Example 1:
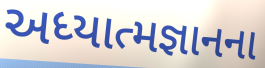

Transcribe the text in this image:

અધ્યાત્મજ્ઞાનના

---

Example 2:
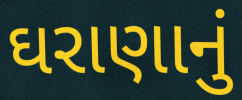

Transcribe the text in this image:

ઘરાણાનું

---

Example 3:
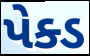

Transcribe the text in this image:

પેક્ડ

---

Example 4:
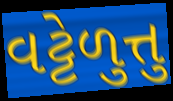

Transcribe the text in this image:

વટ્ટેળુત્તુ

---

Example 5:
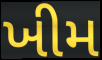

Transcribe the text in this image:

ખીમ